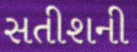
સતીશની